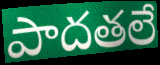
పాదతలే